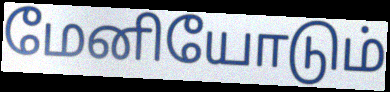
மேனியோடும்